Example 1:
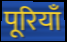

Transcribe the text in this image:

पूरियाँ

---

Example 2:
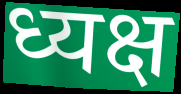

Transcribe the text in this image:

ध्यक्ष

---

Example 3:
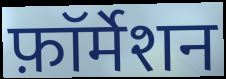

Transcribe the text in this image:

फ़ॉर्मेशन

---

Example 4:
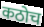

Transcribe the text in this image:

कठोच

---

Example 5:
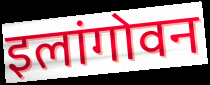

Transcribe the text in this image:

इलांगोवन